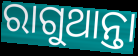
ରାଗୁଥାନ୍ତା